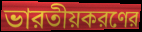
ভারতীয়করণের